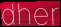
dher